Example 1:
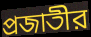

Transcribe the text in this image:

প্রজাতীর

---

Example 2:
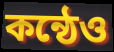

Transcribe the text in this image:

কন্ঠেও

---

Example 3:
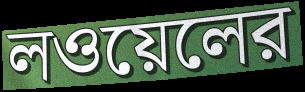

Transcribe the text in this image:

লওয়েলের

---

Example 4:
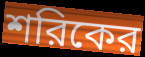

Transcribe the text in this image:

শরিকের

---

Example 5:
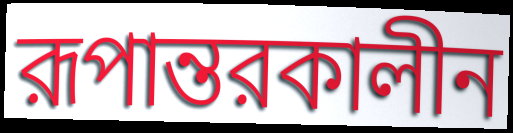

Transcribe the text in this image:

রূপান্তরকালীন